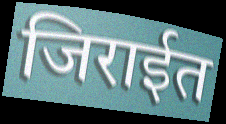
जिराईत